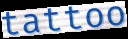
tattoo